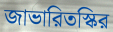
জাভারিতস্কির